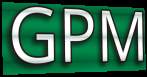
GPM